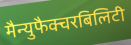
मैन्युफैक्चरबिलिटी